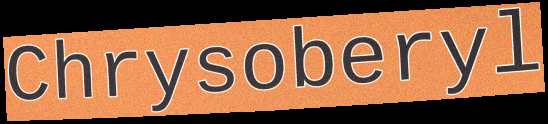
Chrysoberyl